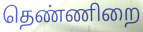
தெண்ணிறை